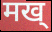
मख्